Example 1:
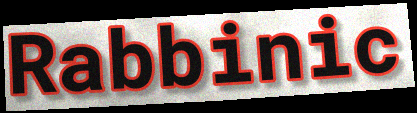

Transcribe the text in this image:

Rabbinic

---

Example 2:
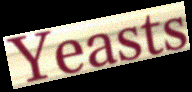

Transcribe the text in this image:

Yeasts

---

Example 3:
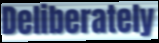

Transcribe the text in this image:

Deliberately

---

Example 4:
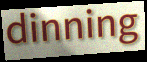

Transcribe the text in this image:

dinning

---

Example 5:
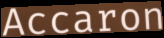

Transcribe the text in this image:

Accaron